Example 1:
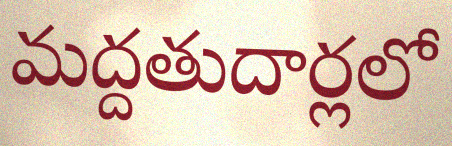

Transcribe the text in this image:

మద్దతుదార్లలో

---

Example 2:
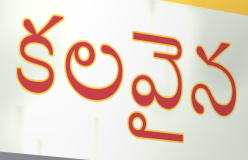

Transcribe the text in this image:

కలవైన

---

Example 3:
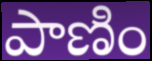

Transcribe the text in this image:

పాణిం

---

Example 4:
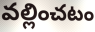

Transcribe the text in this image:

వల్లించటం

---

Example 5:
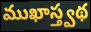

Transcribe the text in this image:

ముఖాస్త్వథ